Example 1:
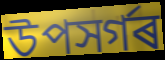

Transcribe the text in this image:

উপসৰ্গৰ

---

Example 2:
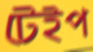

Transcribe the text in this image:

টেইপ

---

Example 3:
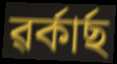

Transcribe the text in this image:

ৱৰ্কাৰ্ছ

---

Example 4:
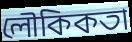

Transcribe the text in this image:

লৌকিকতা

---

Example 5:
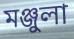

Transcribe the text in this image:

মঞ্জুলা